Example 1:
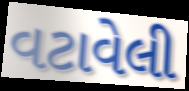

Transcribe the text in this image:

વટાવેલી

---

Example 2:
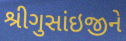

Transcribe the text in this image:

શ્રીગુસાંઇજીને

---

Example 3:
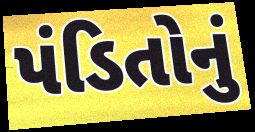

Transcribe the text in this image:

પંડિતોનું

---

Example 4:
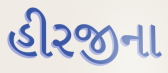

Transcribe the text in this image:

હીરજીના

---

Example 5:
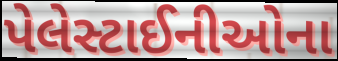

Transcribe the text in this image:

પેલેસ્ટાઈનીઓના